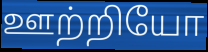
ஊற்றியோ